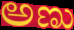
అణు